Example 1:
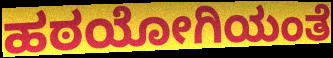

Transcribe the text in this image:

ಹಠಯೋಗಿಯಂತೆ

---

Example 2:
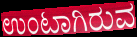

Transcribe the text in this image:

ಉಂಟಾಗಿರುವ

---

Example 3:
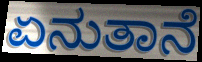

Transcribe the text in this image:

ಏನುತಾನೆ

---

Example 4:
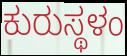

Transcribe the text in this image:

ಕುರುಸ್ಥಳಂ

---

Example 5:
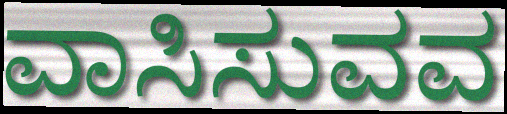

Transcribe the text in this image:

ವಾಸಿಸುವವ